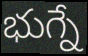
భుగ్నే